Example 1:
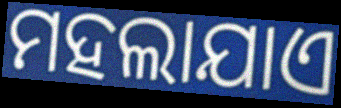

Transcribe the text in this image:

ମହଲାଯାଏ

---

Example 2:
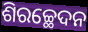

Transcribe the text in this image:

ଶିରଚ୍ଛେଦନ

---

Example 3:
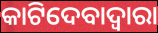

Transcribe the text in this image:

କାଟିଦେବାଦ୍ଵାରା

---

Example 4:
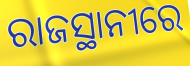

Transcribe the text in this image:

ରାଜସ୍ଥାନୀରେ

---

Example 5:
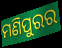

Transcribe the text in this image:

ମଣିପୁରର